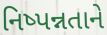
નિષ્પન્નતાને